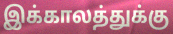
இக்காலத்துக்கு